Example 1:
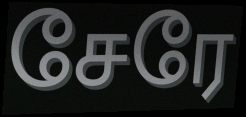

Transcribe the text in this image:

சேரே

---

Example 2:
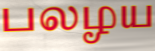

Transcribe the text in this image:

பலழய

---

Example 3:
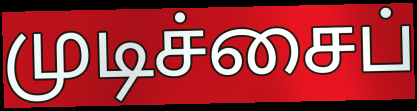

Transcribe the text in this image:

முடிச்சைப்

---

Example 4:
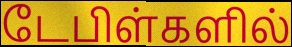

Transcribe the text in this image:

டேபிள்களில்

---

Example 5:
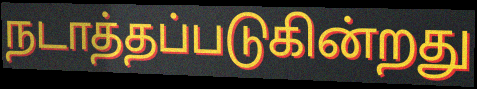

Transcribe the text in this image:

நடாத்தப்படுகின்றது